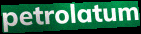
petrolatum